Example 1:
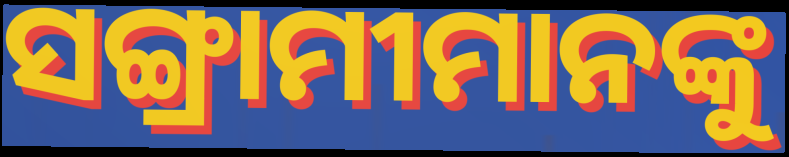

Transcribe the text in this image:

ସଙ୍ଗ୍ରାମୀମାନଙ୍କୁ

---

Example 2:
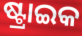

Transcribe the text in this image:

ଷ୍ଟ୍ରାଇକ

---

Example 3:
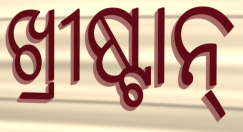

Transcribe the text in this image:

ଖ୍ରୀଷ୍ଟାନ୍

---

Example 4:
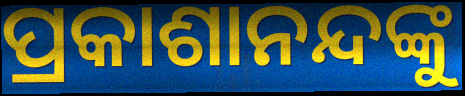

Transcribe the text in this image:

ପ୍ରକାଶାନନ୍ଦଙ୍କୁ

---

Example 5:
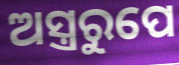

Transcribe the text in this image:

ଅସ୍ତ୍ରରୁପେ